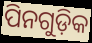
ପିନଗୁଡ଼ିକ